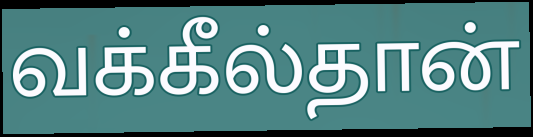
வக்கீல்தான்